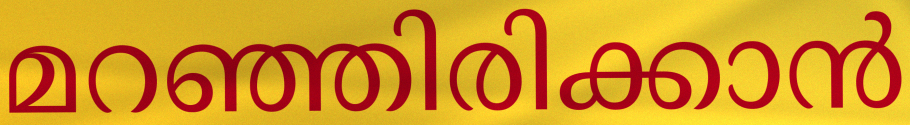
മറഞ്ഞിരിക്കാൻ